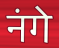
नंगे